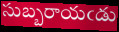
సుబ్బరాయఁడు